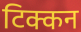
टिक्कन